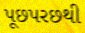
પૂછપરછથી